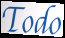
Todo